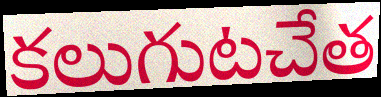
కలుగుటచేత